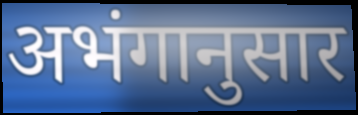
अभंगानुसार